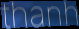
thanh